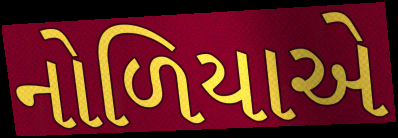
નોળિયાએ